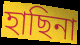
হাছিনা